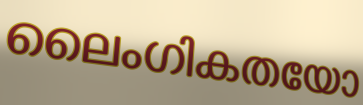
ലൈംഗികതയോ